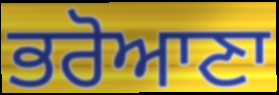
ਭਰੋਆਣਾ